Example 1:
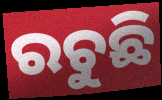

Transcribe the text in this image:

ରଚୁଛି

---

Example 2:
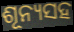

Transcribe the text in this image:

ଶୂନ୍ୟସହ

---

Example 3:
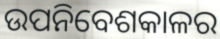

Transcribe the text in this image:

ଉପନିବେଶକାଳର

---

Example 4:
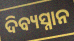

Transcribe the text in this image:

ଦିବ୍ୟସ୍ନାନ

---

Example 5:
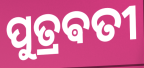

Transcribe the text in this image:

ପୁତ୍ରଵତୀ